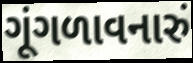
ગૂંગળાવનારું